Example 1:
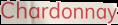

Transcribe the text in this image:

Chardonnay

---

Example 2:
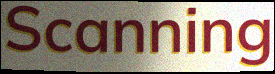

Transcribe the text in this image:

Scanning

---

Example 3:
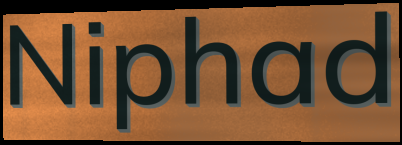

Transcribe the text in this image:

Niphad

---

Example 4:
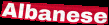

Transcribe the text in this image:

Albanese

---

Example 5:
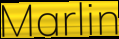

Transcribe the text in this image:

Marlin